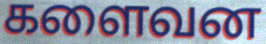
களைவன